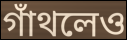
গাঁথলেও